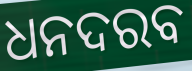
ଧନଦରବ